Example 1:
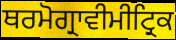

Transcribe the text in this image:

ਥਰਮੋਗ੍ਰਾਵੀਮੀਟ੍ਰਿਕ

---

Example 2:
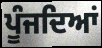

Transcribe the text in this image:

ਪੂੰਜਦਿਆਂ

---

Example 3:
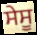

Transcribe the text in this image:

ਸੇਸੂ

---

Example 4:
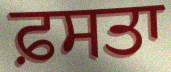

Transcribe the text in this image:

ਫ਼ਸਤਾ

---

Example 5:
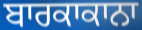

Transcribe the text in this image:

ਬਾਰਕਾਕਾਨਾ